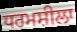
ਧਰਮਸ਼ੀਲਾ